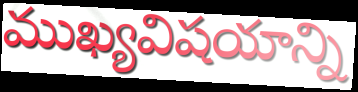
ముఖ్యవిషయాన్ని